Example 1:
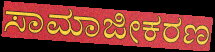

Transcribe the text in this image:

ಸಾಮಾಜೀಕರಣ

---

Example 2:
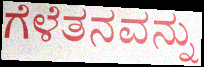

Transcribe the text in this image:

ಗೆಳೆತನವನ್ನು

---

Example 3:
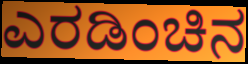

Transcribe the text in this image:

ಎರಡಿಂಚಿನ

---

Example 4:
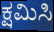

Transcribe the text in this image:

ಕ್ಷಮಿಸಿ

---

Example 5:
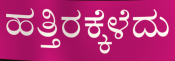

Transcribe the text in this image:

ಹತ್ತಿರಕ್ಕೆಳೆದು